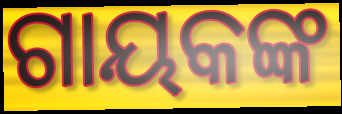
ଗାୟକଙ୍କ